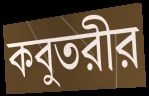
কবুতরীর